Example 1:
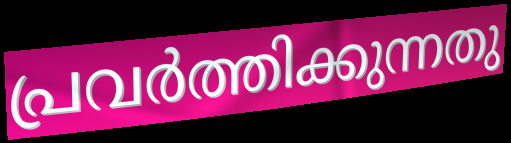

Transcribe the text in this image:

പ്രവർത്തിക്കുന്നതു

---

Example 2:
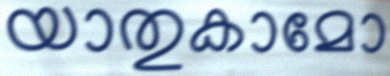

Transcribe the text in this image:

യാതുകാമോ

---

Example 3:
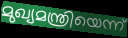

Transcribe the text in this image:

മുഖ്യമന്ത്രിയെന്ന്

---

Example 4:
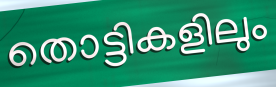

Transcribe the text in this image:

തൊട്ടികളിലും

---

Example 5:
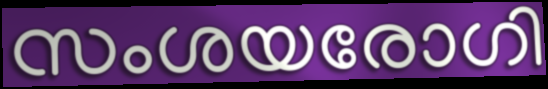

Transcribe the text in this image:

സംശയരോഗി